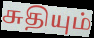
சுதியும்